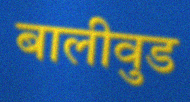
बालीवुड